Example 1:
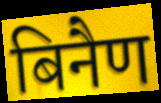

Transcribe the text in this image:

बिनैण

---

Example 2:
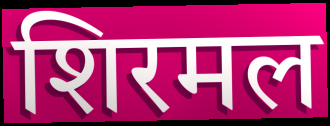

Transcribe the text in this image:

शिरमल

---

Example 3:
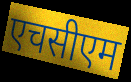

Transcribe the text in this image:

एचसीएम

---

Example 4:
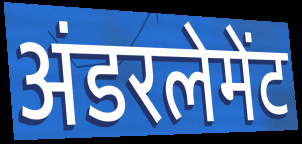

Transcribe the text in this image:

अंडरलेमेंट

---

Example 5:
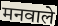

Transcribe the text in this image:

मनवाले